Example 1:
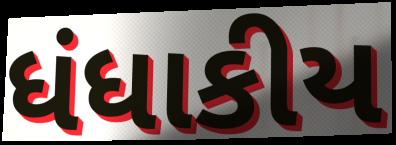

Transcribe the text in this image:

ધંધાકીય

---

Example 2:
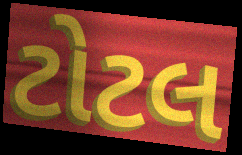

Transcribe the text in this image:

ટોટલ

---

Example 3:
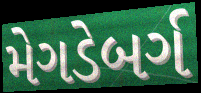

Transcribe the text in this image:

મેગડેબર્ગ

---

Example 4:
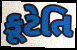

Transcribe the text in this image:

કૂટેતિ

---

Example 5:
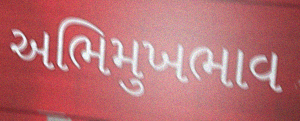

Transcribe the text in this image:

અભિમુખભાવ